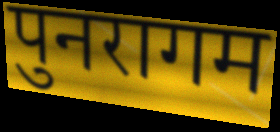
पुनरागम